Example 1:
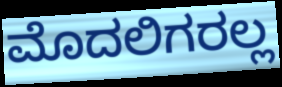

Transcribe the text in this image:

ಮೊದಲಿಗರಲ್ಲ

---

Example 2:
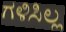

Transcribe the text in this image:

ಗಳಿಸಿಲ್ಲ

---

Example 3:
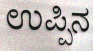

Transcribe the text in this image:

ಉಪ್ಪಿನ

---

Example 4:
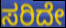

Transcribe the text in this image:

ಸರಿದೇ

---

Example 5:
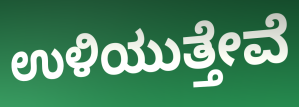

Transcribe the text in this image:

ಉಳಿಯುತ್ತೇವೆ